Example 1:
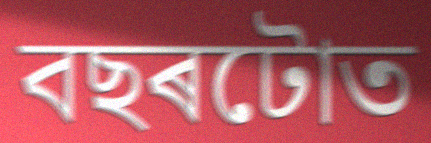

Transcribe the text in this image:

বছৰটোত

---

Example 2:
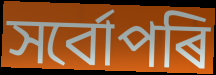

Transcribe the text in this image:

সৰ্বোপৰি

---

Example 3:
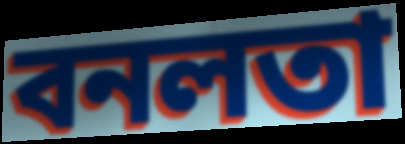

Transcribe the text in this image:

বনলতা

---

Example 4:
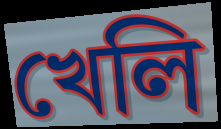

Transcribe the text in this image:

খেলি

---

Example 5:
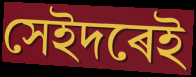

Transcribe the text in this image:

সেইদৰেই